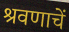
श्रवणाचें